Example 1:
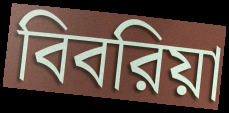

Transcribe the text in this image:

বিবরিয়া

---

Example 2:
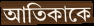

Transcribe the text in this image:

আতিকাকে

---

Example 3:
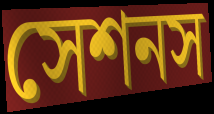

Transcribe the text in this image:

সেশনস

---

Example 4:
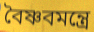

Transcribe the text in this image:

বৈষ্ণবমন্ত্রে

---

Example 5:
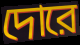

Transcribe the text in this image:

দোরে